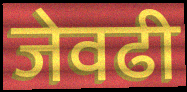
जेवढी